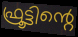
ഫ്രൂട്ടിന്റെ